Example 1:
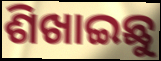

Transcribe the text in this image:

ଶିଖାଇଛୁ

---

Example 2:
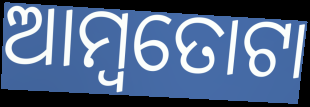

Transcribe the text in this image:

ଆମ୍ବତୋଟା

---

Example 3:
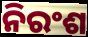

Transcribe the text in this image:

ନିରଂଶ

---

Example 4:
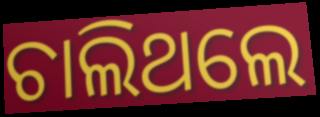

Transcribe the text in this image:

ଚାଲିଥଲେ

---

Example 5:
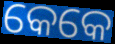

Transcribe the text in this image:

କେକେ